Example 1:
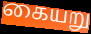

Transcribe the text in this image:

கையறு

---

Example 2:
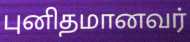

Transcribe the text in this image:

புனிதமானவர்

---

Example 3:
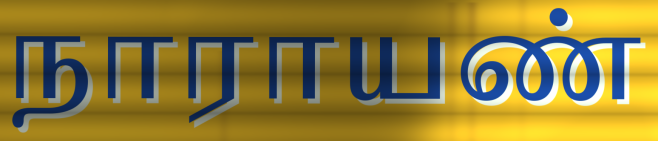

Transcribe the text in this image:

நாராயண்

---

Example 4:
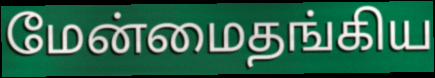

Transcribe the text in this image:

மேன்மைதங்கிய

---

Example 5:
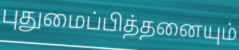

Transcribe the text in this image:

புதுமைப்பித்தனையும்